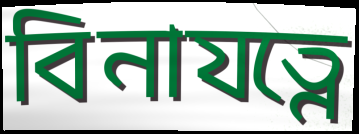
বিনাযত্নে